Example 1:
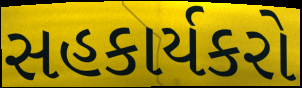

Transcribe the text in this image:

સહકાર્યકરો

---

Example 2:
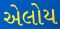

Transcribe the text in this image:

એલોય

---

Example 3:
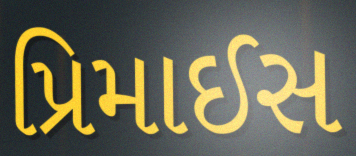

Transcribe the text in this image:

પ્રિમાઈસ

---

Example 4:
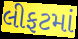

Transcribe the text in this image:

લીફટમાં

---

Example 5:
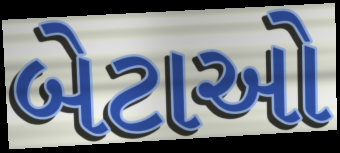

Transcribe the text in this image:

બેટાઓ